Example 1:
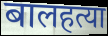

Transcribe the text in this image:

बालहत्या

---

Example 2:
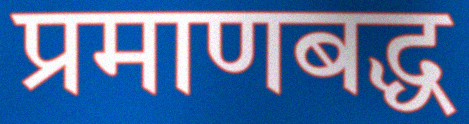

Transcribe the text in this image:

प्रमाणबद्ध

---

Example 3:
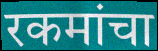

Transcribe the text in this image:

रकमांचा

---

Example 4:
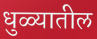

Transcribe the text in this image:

धुळ्यातील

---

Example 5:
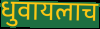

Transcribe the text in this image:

धुवायलाच